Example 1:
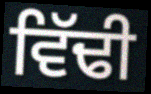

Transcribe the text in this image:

ਵਿੱਢੀ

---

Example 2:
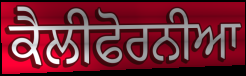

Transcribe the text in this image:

ਕੈਲੀਫੋਰਨੀਆ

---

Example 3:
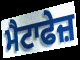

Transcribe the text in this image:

ਮੈਟਾਫੇਜ਼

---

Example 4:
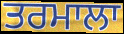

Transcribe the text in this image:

ਤਰਮਾਲਾ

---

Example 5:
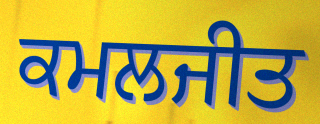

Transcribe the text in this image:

ਕਮਲਜੀਤ